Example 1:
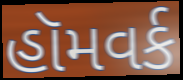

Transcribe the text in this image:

હૉમવર્ક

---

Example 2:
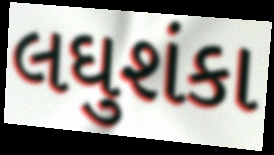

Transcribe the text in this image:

લઘુશંકા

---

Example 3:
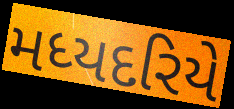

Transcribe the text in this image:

મધ્યદરિયે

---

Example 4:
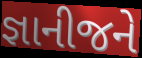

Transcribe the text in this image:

જ્ઞાનીજને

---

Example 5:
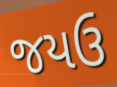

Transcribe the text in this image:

જયઉ